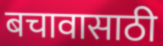
बचावासाठी